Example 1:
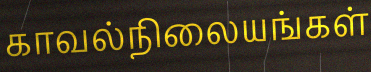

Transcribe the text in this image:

காவல்நிலையங்கள்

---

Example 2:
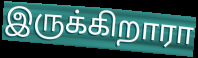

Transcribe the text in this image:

இருக்கிறாரா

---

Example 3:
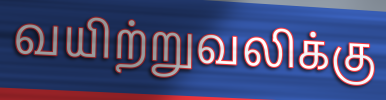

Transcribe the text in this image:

வயிற்றுவலிக்கு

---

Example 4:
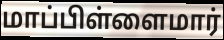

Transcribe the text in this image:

மாப்பிள்ளைமார்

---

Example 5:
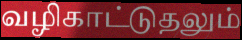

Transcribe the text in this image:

வழிகாட்டுதலும்